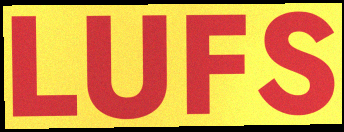
LUFS